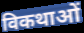
विकथाओं